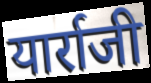
यार्राजी